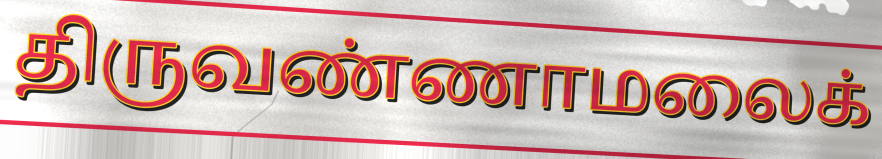
திருவண்ணாமலைக்